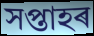
সপ্তাহৰ